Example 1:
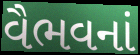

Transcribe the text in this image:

વૈભવનાં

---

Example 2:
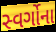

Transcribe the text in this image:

સ્વર્ગોના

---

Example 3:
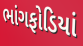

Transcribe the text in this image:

ભાંગફોડિયાં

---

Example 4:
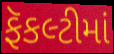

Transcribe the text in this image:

ફૅકલ્ટીમાં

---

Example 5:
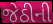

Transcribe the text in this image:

જેઠીની